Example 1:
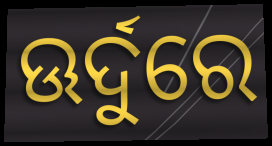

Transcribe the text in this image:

ଊର୍ଦୁରେ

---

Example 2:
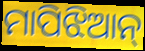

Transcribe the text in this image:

ମାପିଝିଆନ୍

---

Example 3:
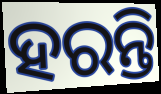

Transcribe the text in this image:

ହରନ୍ତି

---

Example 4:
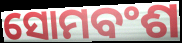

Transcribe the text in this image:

ସୋମବଂଶ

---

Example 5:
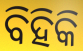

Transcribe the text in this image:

ବିହିକି